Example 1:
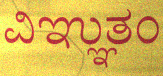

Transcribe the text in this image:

ವಿಞ್ಞುತಂ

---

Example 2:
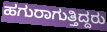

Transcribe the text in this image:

ಹಗುರಾಗುತ್ತಿದ್ದರು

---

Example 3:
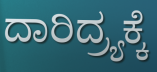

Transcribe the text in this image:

ದಾರಿದ್ರ್ಯಕ್ಕೆ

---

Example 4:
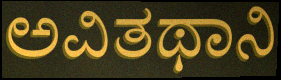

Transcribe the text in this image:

ಅವಿತಥಾನಿ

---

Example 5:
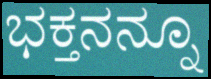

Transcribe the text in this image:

ಭಕ್ತನನ್ನೂ